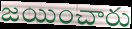
జయించారు